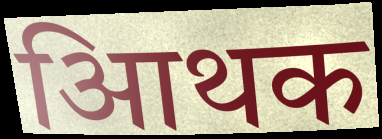
आिथक